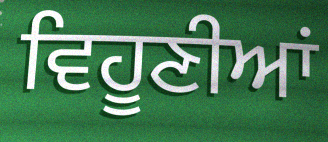
ਵਿਹੂਣੀਆਂ